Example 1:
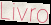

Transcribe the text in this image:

Livro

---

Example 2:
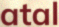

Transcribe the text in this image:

atal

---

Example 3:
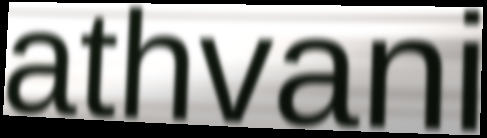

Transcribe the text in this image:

athvani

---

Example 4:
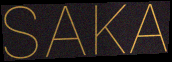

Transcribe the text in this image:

SAKA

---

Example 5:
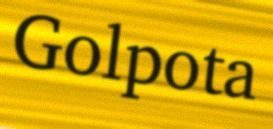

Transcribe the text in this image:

Golpota